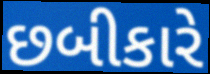
છબીકારે